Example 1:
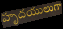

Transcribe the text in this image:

హృదయులుగా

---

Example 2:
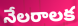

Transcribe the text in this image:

నేలరాలక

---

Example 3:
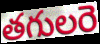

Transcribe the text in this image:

తగులరె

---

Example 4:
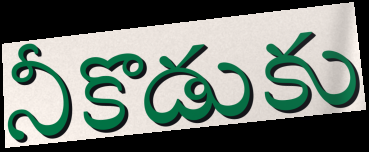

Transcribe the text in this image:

నీకొడుకు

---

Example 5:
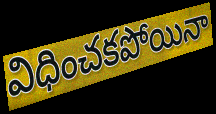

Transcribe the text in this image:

విధించకపోయినా